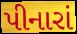
પીનારાં